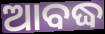
ଆବଦ୍ଧ